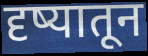
दृष्यातून